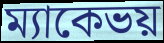
ম্যাকেভয়